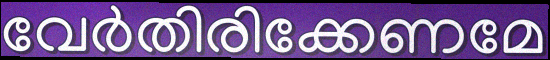
വേർതിരിക്കേണമേ